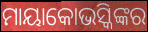
ମାୟାକୋଭସ୍କିଙ୍କର